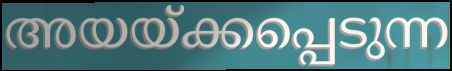
അയയ്ക്കപ്പെടുന്ന